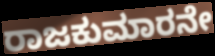
ರಾಜಕುಮಾರನೇ